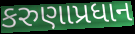
કરુણાપ્રધાન